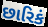
છારિકં